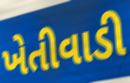
ખેતીવાડી